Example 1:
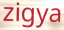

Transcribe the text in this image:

zigya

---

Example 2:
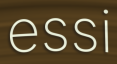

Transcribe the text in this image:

essi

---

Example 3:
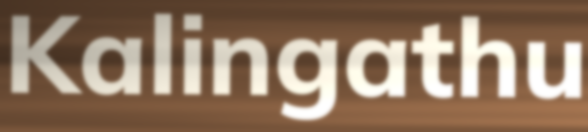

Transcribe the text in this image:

Kalingathu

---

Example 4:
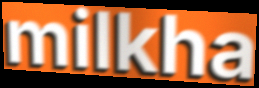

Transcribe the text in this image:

milkha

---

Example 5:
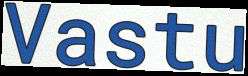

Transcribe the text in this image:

Vastu